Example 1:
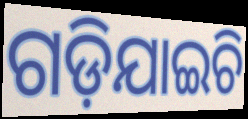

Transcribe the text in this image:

ଗଡ଼ିଯାଇଚି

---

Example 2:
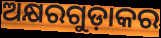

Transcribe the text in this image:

ଅକ୍ଷରଗୁଡ଼ାକର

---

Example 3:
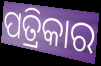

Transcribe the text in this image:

ପତ୍ରିକାର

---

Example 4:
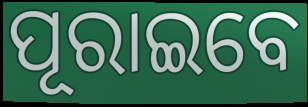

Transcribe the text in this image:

ପୂରାଇବେ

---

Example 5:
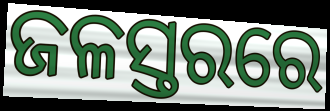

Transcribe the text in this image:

ଜଳସ୍ତରରେ